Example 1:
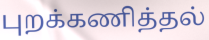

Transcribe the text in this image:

புறக்கணித்தல்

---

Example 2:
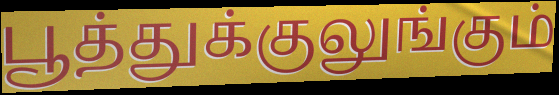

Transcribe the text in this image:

பூத்துக்குலுங்கும்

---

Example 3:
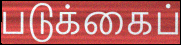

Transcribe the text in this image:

படுக்கைப்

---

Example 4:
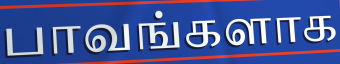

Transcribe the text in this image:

பாவங்களாக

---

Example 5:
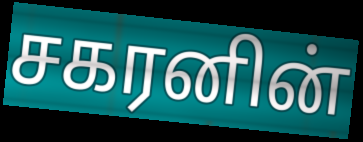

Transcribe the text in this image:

சகரனின்